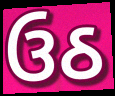
ઉઠ